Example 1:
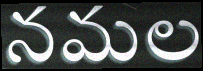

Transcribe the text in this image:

నమల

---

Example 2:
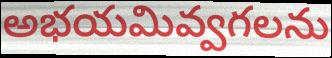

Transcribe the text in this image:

అభయమివ్వగలను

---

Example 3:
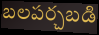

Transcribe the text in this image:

బలపర్చబడి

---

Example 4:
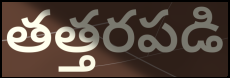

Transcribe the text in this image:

తత్తరపడి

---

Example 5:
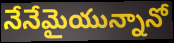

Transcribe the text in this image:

నేనేమైయున్నానో